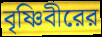
বৃষ্ণিবীরের